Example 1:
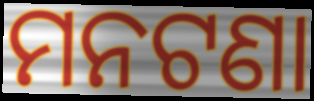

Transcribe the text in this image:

ମନଟଣା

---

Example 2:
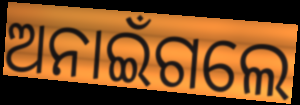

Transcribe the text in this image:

ଅନାଇଁଗଲେ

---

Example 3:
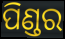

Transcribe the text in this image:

ପିଣ୍ଡର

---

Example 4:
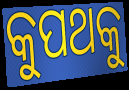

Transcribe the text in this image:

କୁପଥକୁ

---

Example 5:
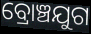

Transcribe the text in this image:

ବ୍ରୋଞ୍ଚଯୁଗ